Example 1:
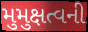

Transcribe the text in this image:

મુમુક્ષત્વની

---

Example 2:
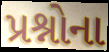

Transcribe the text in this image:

પ્રશ્નોના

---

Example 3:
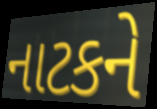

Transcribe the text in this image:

નાટકને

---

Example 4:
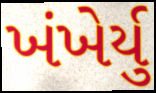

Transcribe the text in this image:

ખંખેર્યુ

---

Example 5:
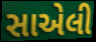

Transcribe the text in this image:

સાએલી